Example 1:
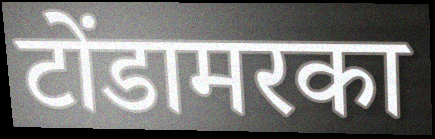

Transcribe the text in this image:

टोंडामरका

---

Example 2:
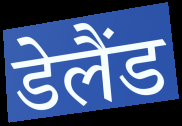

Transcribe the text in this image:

डेलैंड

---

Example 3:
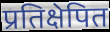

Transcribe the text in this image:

प्रतिक्षेपित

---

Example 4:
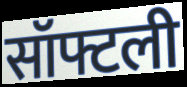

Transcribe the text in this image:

सॉफ्टली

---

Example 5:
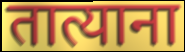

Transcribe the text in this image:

तात्याना